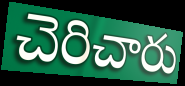
చెరిచారు